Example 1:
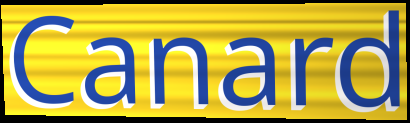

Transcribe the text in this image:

Canard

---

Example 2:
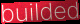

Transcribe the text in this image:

builded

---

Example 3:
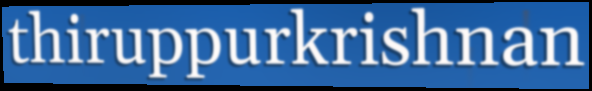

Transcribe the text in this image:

thiruppurkrishnan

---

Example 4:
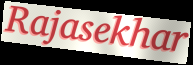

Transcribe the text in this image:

Rajasekhar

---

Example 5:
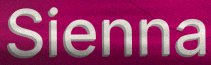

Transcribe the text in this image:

Sienna